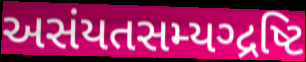
અસંયતસમ્યગ્દ્રષ્ટિ